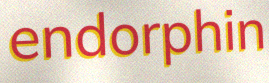
endorphin